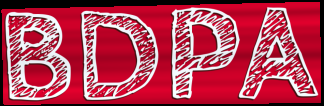
BDPA